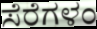
ಸೆರೆಗಳಂ